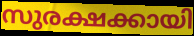
സുരക്ഷക്കായി